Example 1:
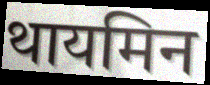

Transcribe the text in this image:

थायमिन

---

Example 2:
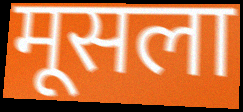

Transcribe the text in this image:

मूसला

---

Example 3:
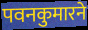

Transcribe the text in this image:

पवनकुमारने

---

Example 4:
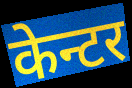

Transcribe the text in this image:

केन्टर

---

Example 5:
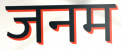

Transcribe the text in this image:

जनम